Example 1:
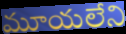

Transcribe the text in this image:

మూయలేని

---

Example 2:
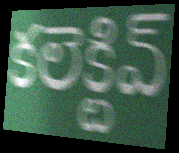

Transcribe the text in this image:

కలెక్టివ్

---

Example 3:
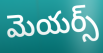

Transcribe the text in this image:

మెయర్స్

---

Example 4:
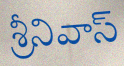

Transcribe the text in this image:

శ్రీనివాస్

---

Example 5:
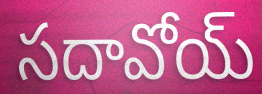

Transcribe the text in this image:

సదావోయ్